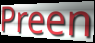
Preen